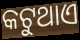
କଟୁଥାଏ